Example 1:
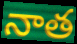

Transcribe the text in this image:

నాత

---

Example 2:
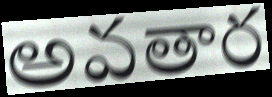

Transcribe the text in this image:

అవతార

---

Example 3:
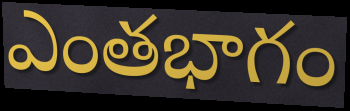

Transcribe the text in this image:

ఎంతభాగం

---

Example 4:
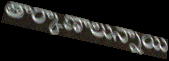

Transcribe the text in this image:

తార్కాణాలున్నాయి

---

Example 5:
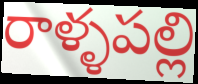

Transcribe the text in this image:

రాళ్ళపల్లి